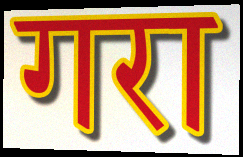
गरा